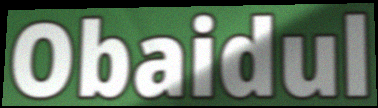
Obaidul